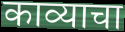
काव्याचा